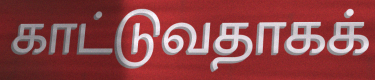
காட்டுவதாகக்